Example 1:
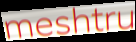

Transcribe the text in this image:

meshtru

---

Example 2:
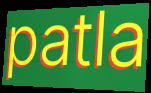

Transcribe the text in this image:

patla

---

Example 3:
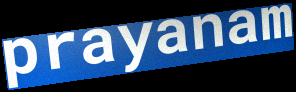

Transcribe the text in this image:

prayanam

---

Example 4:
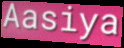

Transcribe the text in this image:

Aasiya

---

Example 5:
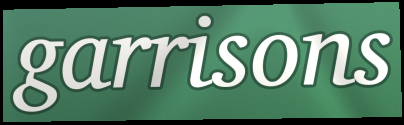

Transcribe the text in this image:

garrisons